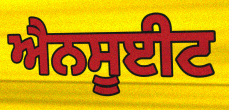
ਐਨਸੂਈਟ